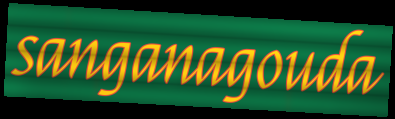
sanganagouda